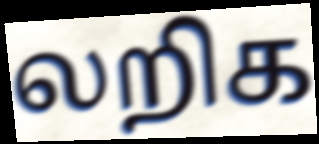
லறிக